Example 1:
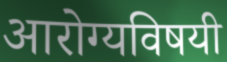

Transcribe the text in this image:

आरोग्यविषयी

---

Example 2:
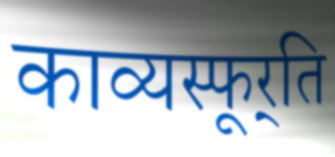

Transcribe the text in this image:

काव्यस्फूर्ति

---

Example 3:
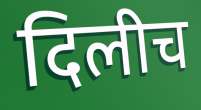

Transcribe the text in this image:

दिलीच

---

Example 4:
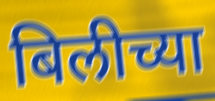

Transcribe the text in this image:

बिलीच्या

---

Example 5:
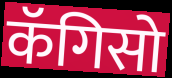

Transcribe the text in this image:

कॅगिसो